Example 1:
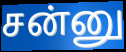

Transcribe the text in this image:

சன்னு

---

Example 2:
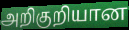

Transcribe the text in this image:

அறிகுறியான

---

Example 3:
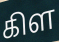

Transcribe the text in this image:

கிள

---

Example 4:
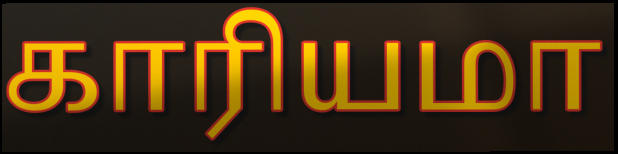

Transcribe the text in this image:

காரியமா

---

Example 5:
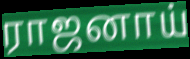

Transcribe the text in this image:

ராஜனாய்